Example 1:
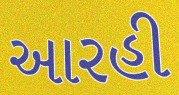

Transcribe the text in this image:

આરહી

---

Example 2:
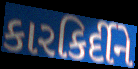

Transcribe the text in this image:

કારકિર્દીને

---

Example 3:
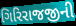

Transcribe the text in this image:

ગિરિરાજજીની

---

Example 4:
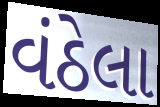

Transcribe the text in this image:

વંઠેલા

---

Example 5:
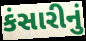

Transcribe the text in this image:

કંસારીનું